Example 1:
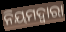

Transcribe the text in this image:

ନିୟମଦ୍ଵାରା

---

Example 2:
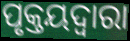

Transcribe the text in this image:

ପୃକ୍ତୟଦ୍ଵାରା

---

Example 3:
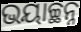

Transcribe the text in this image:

ଭୟାଚ୍ଛନ୍ନ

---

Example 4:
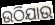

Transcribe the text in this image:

ଉଠିଯାଉ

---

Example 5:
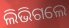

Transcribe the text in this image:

ଲିଭିଗଲେ